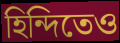
হিন্দিতেও